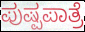
ಪುಷ್ಪಪಾತ್ರೆ